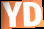
YD